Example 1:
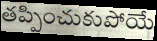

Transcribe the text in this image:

తప్పించుకుపోయే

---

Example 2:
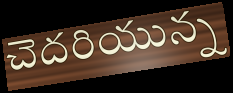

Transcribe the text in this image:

చెదరియున్న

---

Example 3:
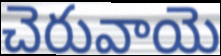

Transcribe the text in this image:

చెరువాయె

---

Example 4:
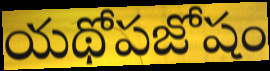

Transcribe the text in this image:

యథోపజోషం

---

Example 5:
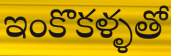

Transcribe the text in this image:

ఇంకొకళ్ళతో